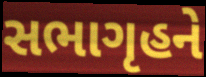
સભાગૃહને